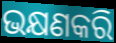
ଭକ୍ଷଣକରି